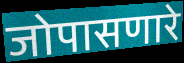
जोपासणारे